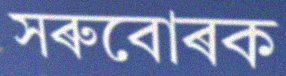
সৰুবোৰক